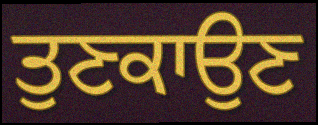
ਤੁਣਕਾਉਣ